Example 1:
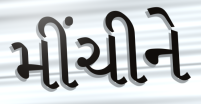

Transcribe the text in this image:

મીંચીને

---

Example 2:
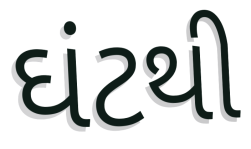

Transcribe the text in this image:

ઘંટથી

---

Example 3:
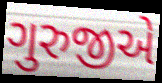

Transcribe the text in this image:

ગુરુજીએ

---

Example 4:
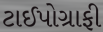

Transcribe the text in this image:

ટાઈપોગ્રાફી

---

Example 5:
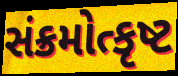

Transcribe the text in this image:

સંક્રમોત્કૃષ્ટ